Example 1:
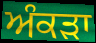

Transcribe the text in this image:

ਅੰਕੜਾ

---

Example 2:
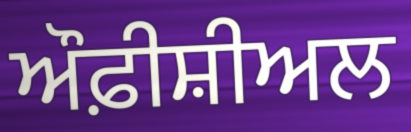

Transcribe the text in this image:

ਔਫ਼ੀਸ਼ੀਅਲ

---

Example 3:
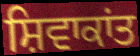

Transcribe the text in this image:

ਸ਼ਿਵਾਕਾਂਤ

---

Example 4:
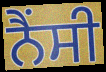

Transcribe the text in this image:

ਨੈਂਸੀ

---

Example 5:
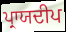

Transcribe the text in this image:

ਪ੍ਰਾਯਦੀਪ